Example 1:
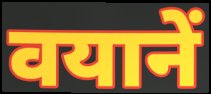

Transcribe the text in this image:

वयानें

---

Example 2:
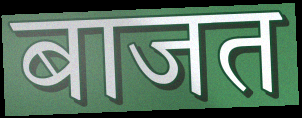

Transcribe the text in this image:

बाजत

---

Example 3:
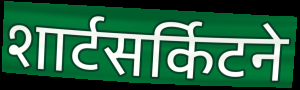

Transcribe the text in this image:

शार्टसर्किटने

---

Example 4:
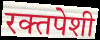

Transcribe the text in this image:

रक्तपेशी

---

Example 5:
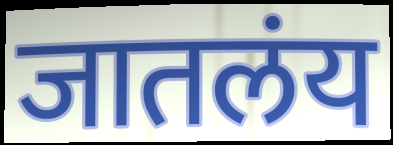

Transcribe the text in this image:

जातलंय